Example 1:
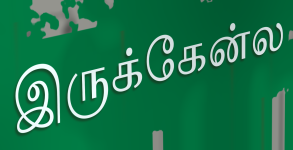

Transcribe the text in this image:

இருக்கேன்ல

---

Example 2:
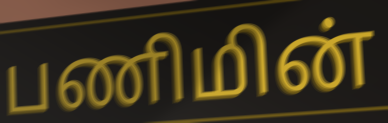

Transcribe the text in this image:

பணிமின்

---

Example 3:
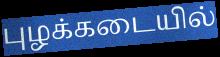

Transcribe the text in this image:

புழக்கடையில்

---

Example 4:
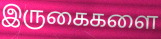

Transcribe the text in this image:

இருகைகளை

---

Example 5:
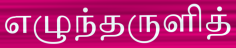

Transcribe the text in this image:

எழுந்தருளித்